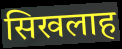
सिखलाह